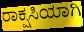
ರಾಕ್ಷಸಿಯಾಗಿ